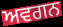
ਅਵਗਨ